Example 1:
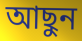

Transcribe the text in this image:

আছুন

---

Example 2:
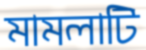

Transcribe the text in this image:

মামলাটি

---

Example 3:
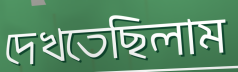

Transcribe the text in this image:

দেখতেছিলাম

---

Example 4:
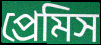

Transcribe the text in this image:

প্রেমিস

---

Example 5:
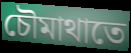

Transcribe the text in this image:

চৌমাথাতে